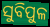
ସୁବିପୁଳ